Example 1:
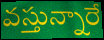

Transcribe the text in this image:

వస్తున్నారే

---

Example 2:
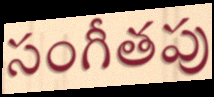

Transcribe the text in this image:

సంగీతపు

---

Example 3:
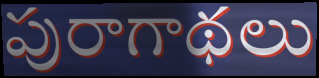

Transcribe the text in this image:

పురాగాథలు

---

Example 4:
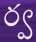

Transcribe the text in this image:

ర్వ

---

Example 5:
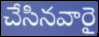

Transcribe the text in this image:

చేసినవారై